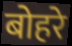
बोहरे